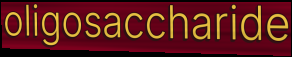
oligosaccharide